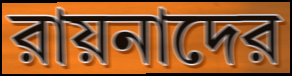
রায়নাদের